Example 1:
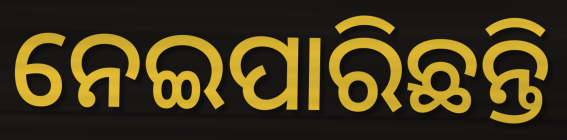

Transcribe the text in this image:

ନେଇପାରିଛନ୍ତି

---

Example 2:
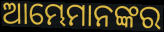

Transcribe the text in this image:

ଆମ୍ଭେମାନଙ୍କର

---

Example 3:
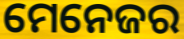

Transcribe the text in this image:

ମେନେଜର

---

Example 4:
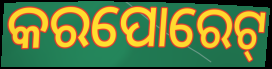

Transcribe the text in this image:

କରପୋରେଟ୍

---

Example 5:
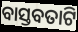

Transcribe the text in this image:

ବାସ୍ତବତାଟି